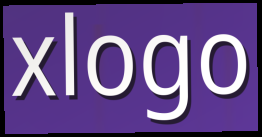
xlogo